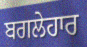
ਬਗਲੇਹਾਰ